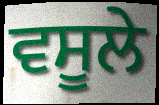
ਵਸੂਲੇ